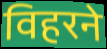
विहरने